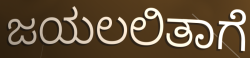
ಜಯಲಲಿತಾಗೆ